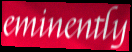
eminently